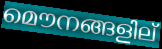
മൌനങ്ങളില്